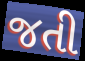
જતી